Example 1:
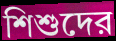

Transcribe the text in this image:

শিশুদের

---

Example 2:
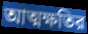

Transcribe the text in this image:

আত্মক্ষতির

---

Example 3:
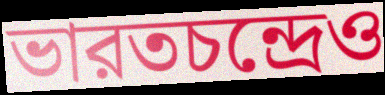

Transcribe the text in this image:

ভারতচন্দ্রেও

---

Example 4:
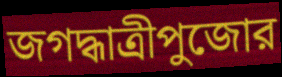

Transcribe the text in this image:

জগদ্ধাত্রীপুজোর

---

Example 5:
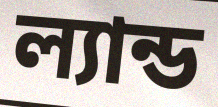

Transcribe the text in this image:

ল্যান্ড